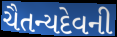
ચૈતન્યદેવની